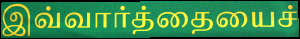
இவ்வார்த்தையைச்